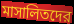
মাসালিতদের